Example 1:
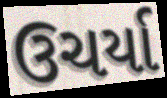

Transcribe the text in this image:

ઉચર્યા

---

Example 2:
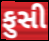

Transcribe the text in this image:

ફુસી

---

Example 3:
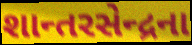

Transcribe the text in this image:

શાન્તરસેન્દ્રના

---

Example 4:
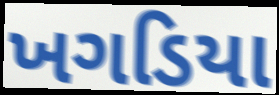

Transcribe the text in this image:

ખગડિયા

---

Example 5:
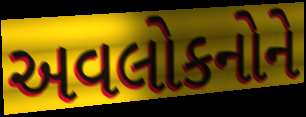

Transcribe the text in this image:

અવલોકનોને